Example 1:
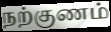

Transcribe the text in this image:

நற்குணம்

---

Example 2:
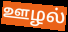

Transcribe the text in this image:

ஊழல்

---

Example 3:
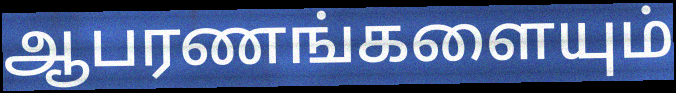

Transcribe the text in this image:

ஆபரணங்களையும்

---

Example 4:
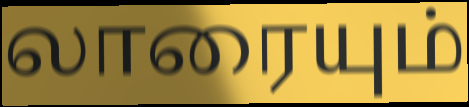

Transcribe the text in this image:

லாரையும்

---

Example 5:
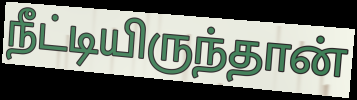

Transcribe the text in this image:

நீட்டியிருந்தான்